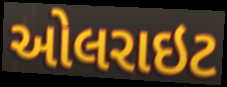
ઓલરાઇટ